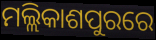
ମଲ୍ଲିକାଶପୁରରେ